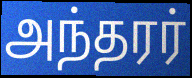
அந்தரர்